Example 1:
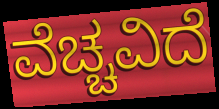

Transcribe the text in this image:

ವೆಚ್ಚವಿದೆ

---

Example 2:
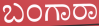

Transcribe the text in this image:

ಬಂಗಾರಾ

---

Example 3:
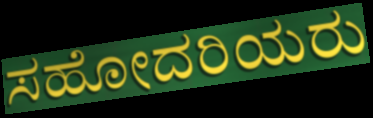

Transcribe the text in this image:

ಸಹೋದರಿಯರು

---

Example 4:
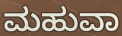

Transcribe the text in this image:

ಮಹುವಾ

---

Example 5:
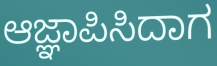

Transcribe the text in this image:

ಆಜ್ಞಾಪಿಸಿದಾಗ